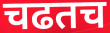
चढतच